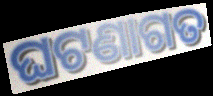
ଘଟଣାଗତ